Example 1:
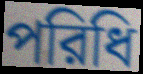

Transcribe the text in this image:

পরিধি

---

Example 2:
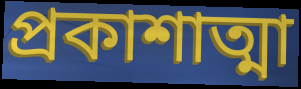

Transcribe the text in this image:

প্রকাশাত্মা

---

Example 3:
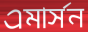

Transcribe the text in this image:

এমার্সন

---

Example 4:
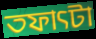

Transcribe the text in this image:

তফাৎটা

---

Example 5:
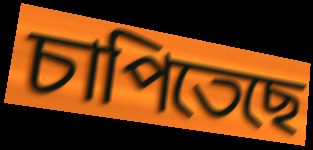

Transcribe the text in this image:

চাপিতেছে